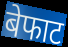
बेफाट